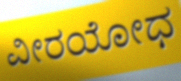
ವೀರಯೋಧ